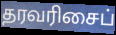
தரவரிசைப்